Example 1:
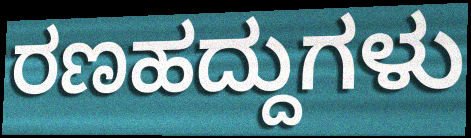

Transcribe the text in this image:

ರಣಹದ್ದುಗಳು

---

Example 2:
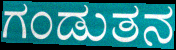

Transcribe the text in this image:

ಗಂಡುತನ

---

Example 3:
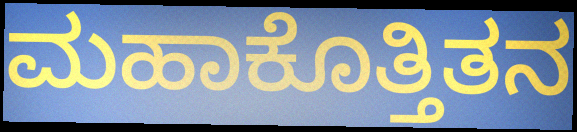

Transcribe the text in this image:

ಮಹಾಕೊತ್ತಿತನ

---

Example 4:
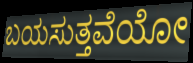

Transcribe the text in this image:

ಬಯಸುತ್ತವೆಯೋ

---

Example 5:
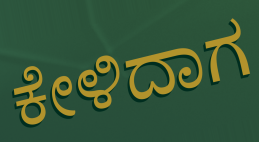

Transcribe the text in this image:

ಕೇಳಿದಾಗ